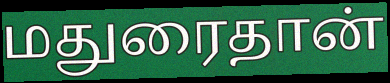
மதுரைதான்